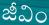
జీవిం